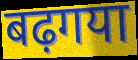
बढ़गया